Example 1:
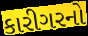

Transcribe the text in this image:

કારીગરનો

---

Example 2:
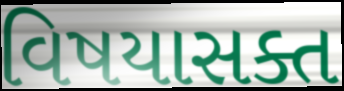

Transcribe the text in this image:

વિષયાસક્ત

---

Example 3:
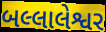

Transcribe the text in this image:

બલ્લાલેશ્વર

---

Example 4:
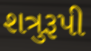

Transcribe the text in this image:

શત્રુરૂપી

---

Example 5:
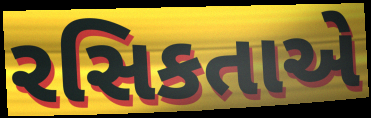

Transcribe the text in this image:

રસિકતાએ